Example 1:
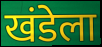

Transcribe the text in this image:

खंडेला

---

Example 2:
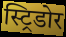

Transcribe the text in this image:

स्ट्रिडोर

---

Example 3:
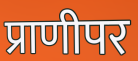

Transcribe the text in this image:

प्राणीपर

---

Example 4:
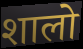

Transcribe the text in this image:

शालो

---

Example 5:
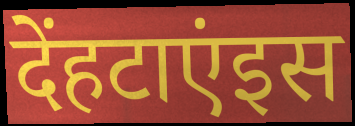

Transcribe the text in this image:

देंहटाएंइस